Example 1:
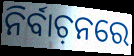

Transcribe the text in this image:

ନିର୍ବାଚ଼ନରେ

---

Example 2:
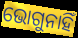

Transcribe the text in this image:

ଭୋଗୁନାହିଁ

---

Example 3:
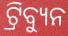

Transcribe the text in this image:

ଟ୍ରିବ୍ୟୁନ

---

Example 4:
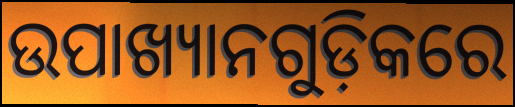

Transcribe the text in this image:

ଉପାଖ୍ୟାନଗୁଡ଼ିକରେ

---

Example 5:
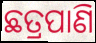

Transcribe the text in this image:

ଛତ୍ରପାଣି